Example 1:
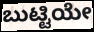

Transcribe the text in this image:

ಬುಟ್ಟಿಯೇ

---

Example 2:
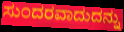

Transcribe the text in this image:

ಸುಂದರವಾದುದನ್ನು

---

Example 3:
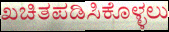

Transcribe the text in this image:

ಖಚಿತಪಡಿಸಿಕೊಳ್ಳಲು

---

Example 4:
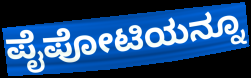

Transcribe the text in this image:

ಪೈಪೋಟಿಯನ್ನೂ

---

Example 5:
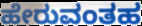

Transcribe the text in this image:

ಹೇರುವಂತಹ